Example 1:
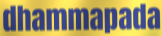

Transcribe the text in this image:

dhammapada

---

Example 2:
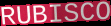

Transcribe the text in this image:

RUBISCO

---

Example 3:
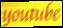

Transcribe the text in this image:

youtube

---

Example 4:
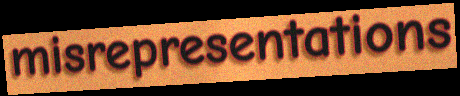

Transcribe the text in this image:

misrepresentations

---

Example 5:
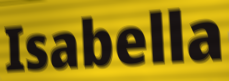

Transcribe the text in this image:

Isabella